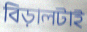
বিড়ালটাই